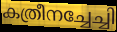
കത്രീനച്ചേച്ചി